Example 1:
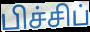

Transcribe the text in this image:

பிச்சிப்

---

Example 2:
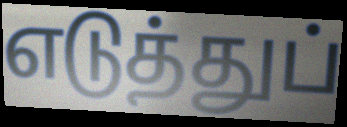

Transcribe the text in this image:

எடுத்துப்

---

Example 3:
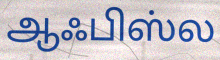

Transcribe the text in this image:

ஆஃபிஸ்ல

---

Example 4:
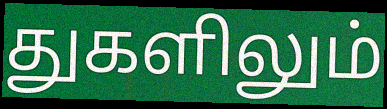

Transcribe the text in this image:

துகளிலும்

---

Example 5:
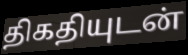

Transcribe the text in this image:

திகதியுடன்